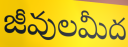
జీవులమీద